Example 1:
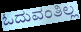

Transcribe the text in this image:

ಓದುವಂತಿಲ್ಲ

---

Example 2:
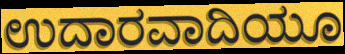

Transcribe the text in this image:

ಉದಾರವಾದಿಯೂ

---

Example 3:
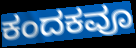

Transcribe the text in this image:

ಕಂದಕವೂ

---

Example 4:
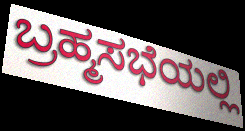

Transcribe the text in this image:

ಬ್ರಹ್ಮಸಭೆಯಲ್ಲಿ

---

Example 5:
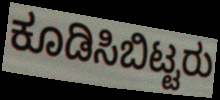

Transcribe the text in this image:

ಕೂಡಿಸಿಬಿಟ್ಟರು